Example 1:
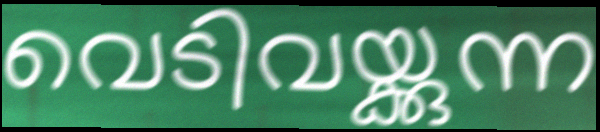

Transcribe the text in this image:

വെടിവയ്ക്കുന്ന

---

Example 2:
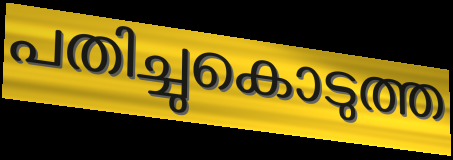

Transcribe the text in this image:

പതിച്ചുകൊടുത്ത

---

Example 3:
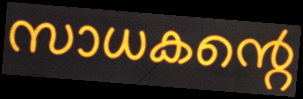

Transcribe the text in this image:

സാധകന്റെ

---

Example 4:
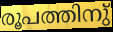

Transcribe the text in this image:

രൂപത്തിനു്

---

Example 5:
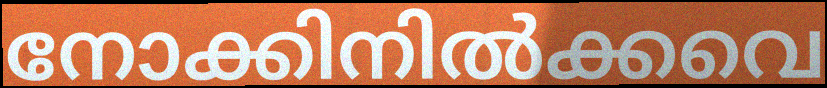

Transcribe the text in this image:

നോക്കിനിൽക്കവെ